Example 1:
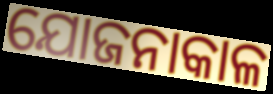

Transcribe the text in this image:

ଯୋଜନାକାଳ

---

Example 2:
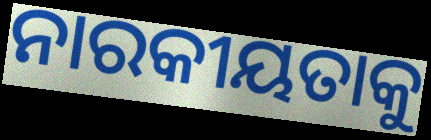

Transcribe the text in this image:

ନାରକୀୟତାକୁ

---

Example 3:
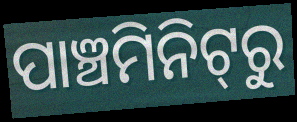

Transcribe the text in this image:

ପାଞ୍ଚମିନିଟ୍‌ରୁ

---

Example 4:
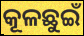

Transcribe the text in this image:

କୂଳଛୁଇଁ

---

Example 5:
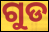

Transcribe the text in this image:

ଗୁଡ